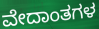
ವೇದಾಂತಗಳ